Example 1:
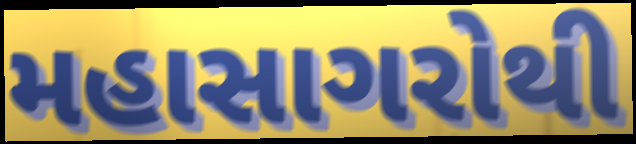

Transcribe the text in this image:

મહાસાગરોથી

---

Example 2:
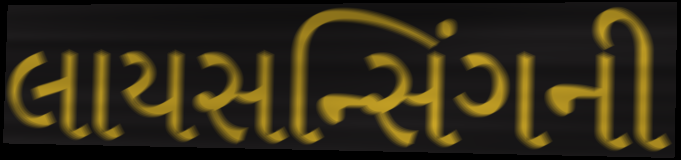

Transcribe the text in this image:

લાયસન્સિંગની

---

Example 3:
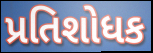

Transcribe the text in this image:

પ્રતિશોધક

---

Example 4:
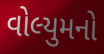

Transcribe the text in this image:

વોલ્યુમનો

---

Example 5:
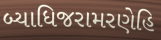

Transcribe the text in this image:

બ્યાધિજરામરણેહિ